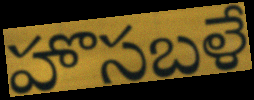
హొసబళే